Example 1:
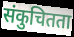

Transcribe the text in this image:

संकुचितता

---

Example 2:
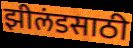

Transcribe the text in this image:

झीलंडसाठी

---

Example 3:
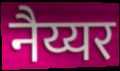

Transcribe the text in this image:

नैय्यर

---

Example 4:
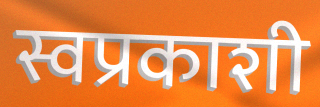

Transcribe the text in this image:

स्वप्रकाशी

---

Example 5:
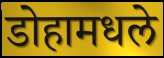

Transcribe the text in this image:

डोहामधले